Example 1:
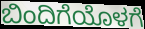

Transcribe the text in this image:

ಬಿಂದಿಗೆಯೊಳಗೆ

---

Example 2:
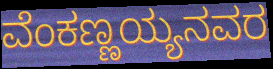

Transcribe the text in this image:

ವೆಂಕಣ್ಣಯ್ಯನವರ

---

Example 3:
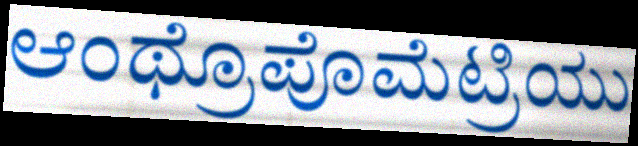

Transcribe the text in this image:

ಆಂಥ್ರೊಪೊಮೆಟ್ರಿಯು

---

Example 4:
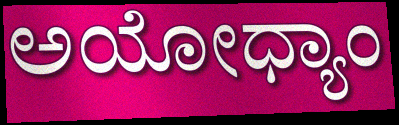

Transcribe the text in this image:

ಅಯೋಧ್ಯಾಂ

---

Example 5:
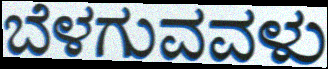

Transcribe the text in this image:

ಬೆಳಗುವವಳು